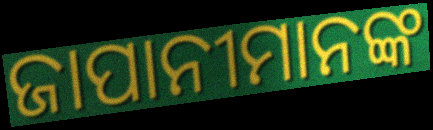
ଜାପାନୀମାନଙ୍କ